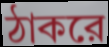
ঠাকরে